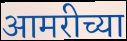
आमरीच्या